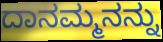
ದಾನಮ್ಮನನ್ನು